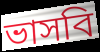
ভাসবি